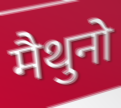
मैथुनो